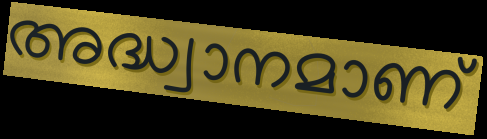
അദ്ധ്വാനമാണ്